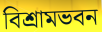
বিশ্রামভবন